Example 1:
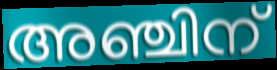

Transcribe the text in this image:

അഞ്ചിന്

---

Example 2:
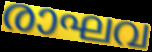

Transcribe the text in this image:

രാഘവ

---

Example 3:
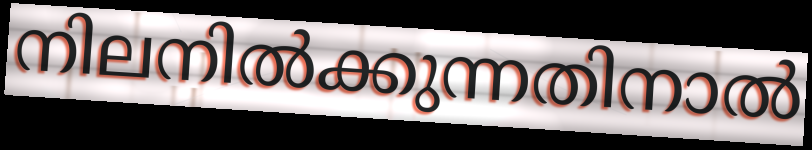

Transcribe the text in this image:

നിലനിൽക്കുന്നതിനാൽ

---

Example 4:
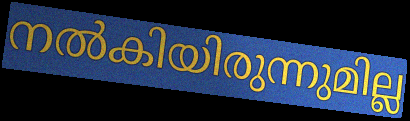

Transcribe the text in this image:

നൽകിയിരുന്നുമില്ല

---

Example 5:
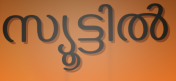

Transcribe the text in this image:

സ്യൂട്ടിൽ